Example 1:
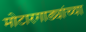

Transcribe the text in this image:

मोटारगाड्यांच्या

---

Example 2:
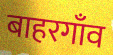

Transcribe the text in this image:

बाहरगाँव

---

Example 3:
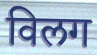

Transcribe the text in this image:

विलग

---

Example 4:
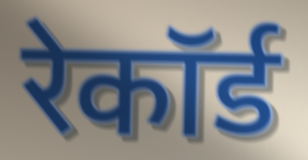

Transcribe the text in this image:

रेकॉर्ड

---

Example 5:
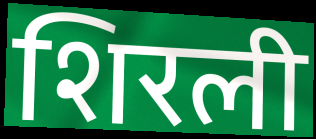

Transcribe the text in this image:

शिरली